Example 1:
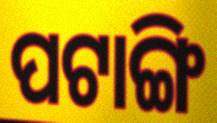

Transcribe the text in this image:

ପଟାଙ୍ଗି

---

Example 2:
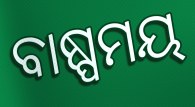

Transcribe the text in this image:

ବାଷ୍ପମୟ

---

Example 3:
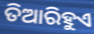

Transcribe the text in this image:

ତିଆରିହୁଏ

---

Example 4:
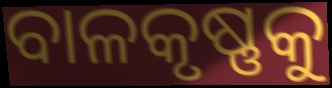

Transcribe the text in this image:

ବାଳକୃଷ୍ଣକୁ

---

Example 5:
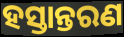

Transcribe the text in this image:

ହସ୍ତାନ୍ତରଣ